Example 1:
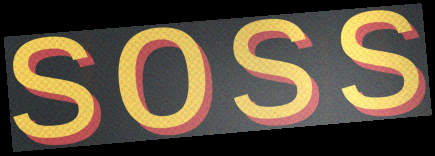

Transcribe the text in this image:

soss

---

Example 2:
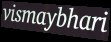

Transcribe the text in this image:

vismaybhari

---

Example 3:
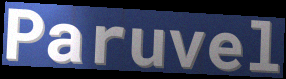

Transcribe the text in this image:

Paruvel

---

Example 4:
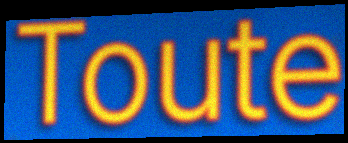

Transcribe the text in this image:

Toute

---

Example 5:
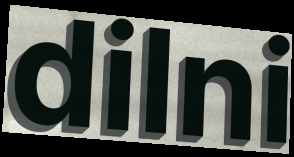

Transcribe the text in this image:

dilni